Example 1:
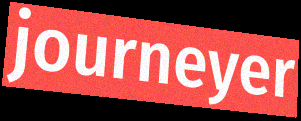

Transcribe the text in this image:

journeyer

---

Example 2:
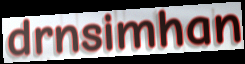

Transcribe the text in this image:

drnsimhan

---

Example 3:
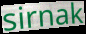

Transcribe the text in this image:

sirnak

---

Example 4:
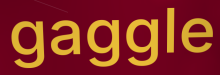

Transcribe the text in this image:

gaggle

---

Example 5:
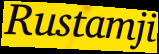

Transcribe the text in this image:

Rustamji